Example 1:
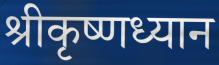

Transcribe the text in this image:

श्रीकृष्णध्यान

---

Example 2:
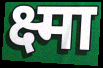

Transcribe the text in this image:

क्ष्मा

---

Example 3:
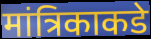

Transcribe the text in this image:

मांत्रिकाकडे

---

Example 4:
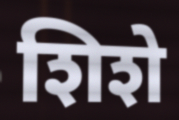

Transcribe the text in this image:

शिशे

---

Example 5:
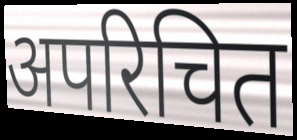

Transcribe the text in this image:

अपरिचित